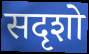
सदृशो